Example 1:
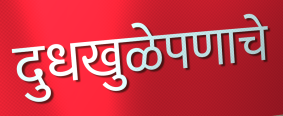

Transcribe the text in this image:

दुधखुळेपणाचे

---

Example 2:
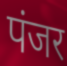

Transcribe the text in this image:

पंजर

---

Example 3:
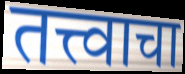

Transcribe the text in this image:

तत्त्वाचा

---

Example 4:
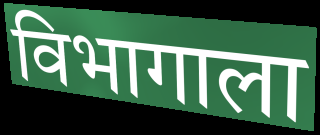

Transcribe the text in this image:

विभागाला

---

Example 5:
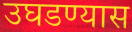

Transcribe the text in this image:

उघडण्यास